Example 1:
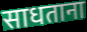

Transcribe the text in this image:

साधताना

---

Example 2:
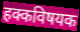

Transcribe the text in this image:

हक्कविषयक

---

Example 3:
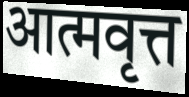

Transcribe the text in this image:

आत्मवृत्त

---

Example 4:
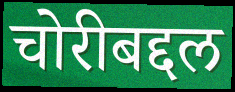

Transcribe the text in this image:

चोरीबद्दल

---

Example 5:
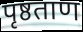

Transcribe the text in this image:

पृष्ठताण